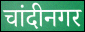
चांदीनगर